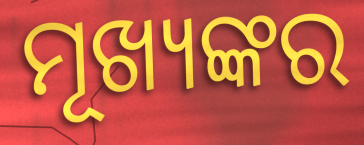
ମୂଖ୍ୟଙ୍କର